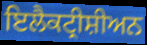
ਇਲੈਕਟ੍ਰੀਸ਼ੀਅਨ